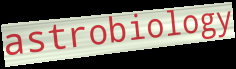
astrobiology